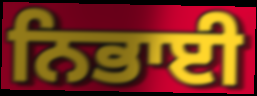
ਨਿਭਾਈ